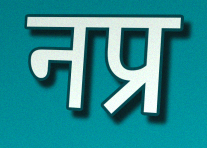
नप्र